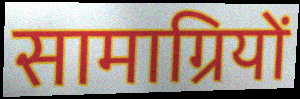
सामाग्रियों